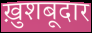
ख़ुशबूदार